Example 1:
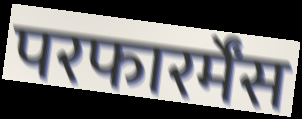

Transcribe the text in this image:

परफारर्मेंस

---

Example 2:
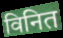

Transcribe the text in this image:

विनित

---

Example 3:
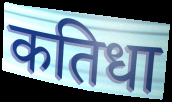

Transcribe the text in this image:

कतिधा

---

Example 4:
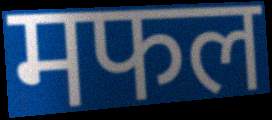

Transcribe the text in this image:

मफल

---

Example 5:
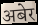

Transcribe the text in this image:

अबेर